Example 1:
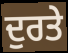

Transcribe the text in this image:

ਦੁਰਤੇ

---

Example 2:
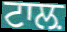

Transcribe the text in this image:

ਟਾਲ਼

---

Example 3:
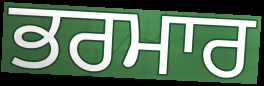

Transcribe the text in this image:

ਭਰਮਾਰ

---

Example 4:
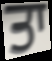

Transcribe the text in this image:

ਤਾ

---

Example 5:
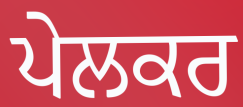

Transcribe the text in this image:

ਪੇਲਕਰ